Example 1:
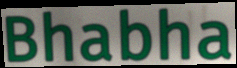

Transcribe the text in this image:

Bhabha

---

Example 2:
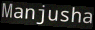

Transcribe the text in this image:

Manjusha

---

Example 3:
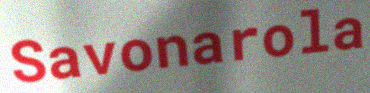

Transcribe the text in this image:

Savonarola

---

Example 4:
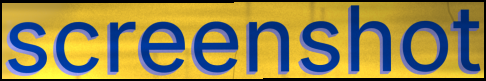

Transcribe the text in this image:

screenshot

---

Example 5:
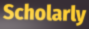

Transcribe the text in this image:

Scholarly